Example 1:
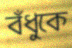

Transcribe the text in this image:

বঁধুকে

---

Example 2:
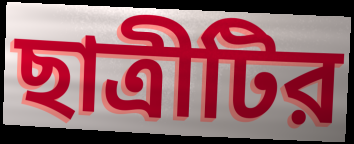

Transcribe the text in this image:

ছাত্রীটির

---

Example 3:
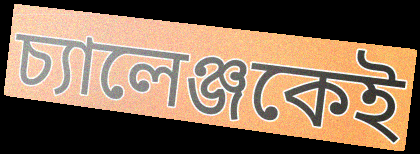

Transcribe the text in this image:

চ্যালেঞ্জকেই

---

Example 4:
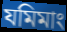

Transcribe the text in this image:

যমিমাং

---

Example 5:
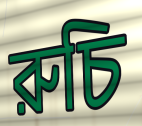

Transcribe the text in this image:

রুচি